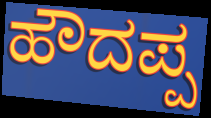
ಹೌದಪ್ಪ